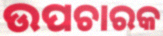
ଉପଚାରକ